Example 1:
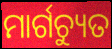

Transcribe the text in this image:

ମାର୍ଗଚ୍ୟୁତ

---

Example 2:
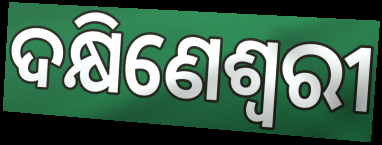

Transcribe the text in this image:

ଦକ୍ଷିଣେଶ୍ଵରୀ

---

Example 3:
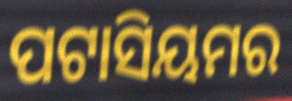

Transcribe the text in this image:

ପଟାସିୟମର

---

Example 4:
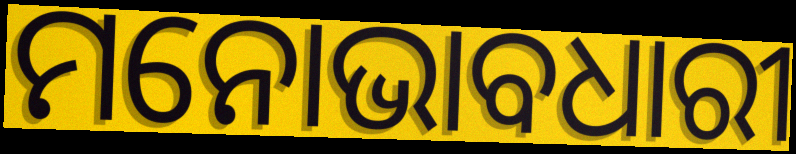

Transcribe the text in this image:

ମନୋଭାବଧାରୀ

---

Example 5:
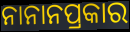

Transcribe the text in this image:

ନାନାନପ୍ରକାର